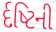
ર્દષ્ટિની